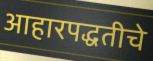
आहारपद्धतीचे